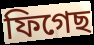
ফিগেছ